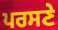
ਪਰਸਣੇ